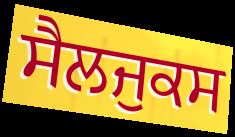
ਸੈਲਜੁਕਸ